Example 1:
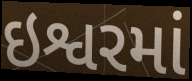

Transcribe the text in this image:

ઇશ્વરમાં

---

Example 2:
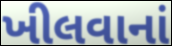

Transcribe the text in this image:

ખીલવાનાં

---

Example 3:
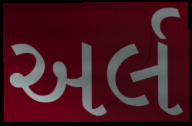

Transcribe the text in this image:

અર્લ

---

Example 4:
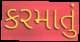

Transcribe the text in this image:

કરમાતું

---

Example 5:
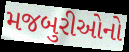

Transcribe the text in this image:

મજબુરીઓનો